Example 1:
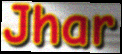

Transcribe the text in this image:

Jhar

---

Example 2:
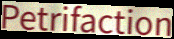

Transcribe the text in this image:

Petrifaction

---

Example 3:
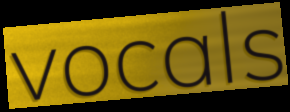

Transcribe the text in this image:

vocals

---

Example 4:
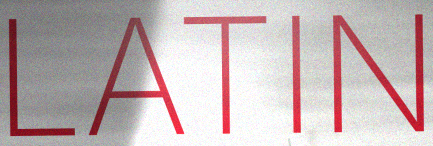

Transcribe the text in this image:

LATIN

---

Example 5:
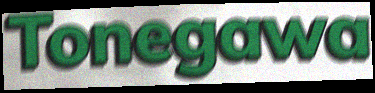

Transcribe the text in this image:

Tonegawa